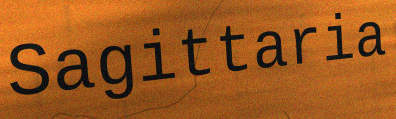
Sagittaria